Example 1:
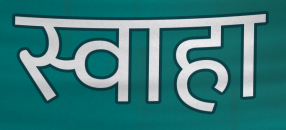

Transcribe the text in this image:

स्वाहा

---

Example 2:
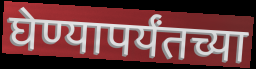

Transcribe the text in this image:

घेण्यापर्यंतच्या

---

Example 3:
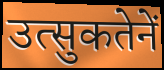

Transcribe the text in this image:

उत्सुकतेनें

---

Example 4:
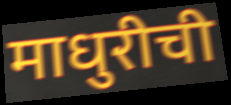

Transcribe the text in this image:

माधुरीची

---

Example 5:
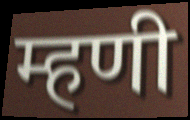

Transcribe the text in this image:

म्हणी